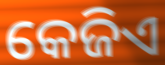
କେଜିଏ